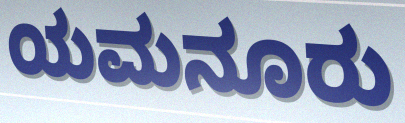
ಯಮನೂರು